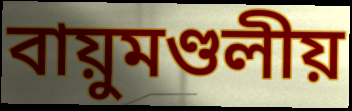
বায়ুমণ্ডলীয়